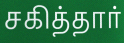
சகித்தார்